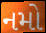
નમો